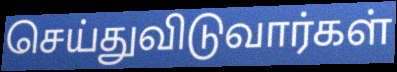
செய்துவிடுவார்கள்